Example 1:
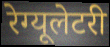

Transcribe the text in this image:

रेग्यूलेटरी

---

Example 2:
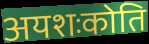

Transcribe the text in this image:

अयशःकोति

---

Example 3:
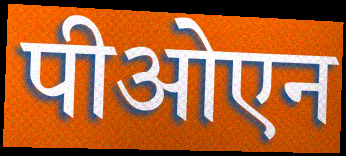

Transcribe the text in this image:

पीओएन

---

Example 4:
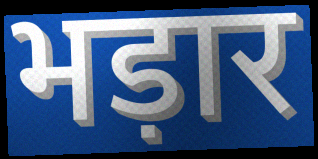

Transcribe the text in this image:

भड़ार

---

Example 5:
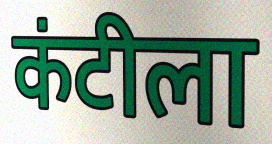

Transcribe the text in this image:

कंटीला